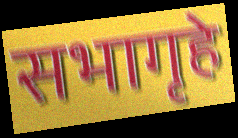
सभागृहे